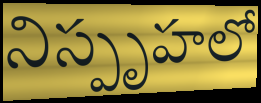
నిస్పృహలో